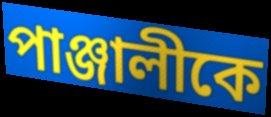
পাঞ্জালীকে